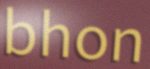
bhon